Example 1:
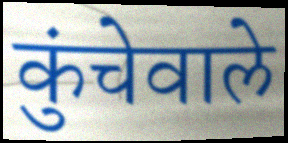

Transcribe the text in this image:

कुंचेवाले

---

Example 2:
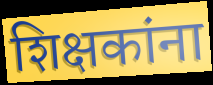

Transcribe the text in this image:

शिक्षकांना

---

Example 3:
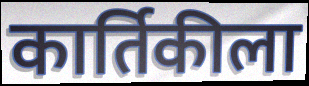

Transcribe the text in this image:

कार्तिकीला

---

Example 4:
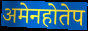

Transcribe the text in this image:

अमेनहोतेप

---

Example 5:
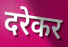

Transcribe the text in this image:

दरेकर